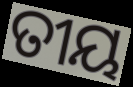
ତୀୟ